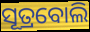
ସୂତ୍ରବୋଲି